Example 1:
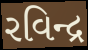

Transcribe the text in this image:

રવિન્દ્ર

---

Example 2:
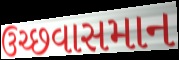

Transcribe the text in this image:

ઉચ્છવાસમાન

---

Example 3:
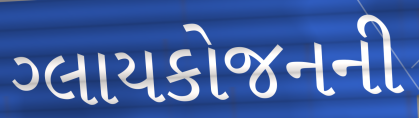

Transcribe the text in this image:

ગ્લાયકોજનની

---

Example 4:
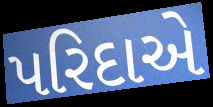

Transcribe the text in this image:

પરિદાએ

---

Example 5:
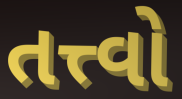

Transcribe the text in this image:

તત્ત્વો